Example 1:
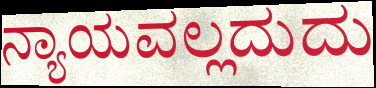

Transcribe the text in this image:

ನ್ಯಾಯವಲ್ಲದುದು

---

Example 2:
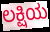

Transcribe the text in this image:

ಲಕ್ಷಿಯ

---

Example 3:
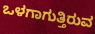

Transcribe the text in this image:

ಒಳಗಾಗುತ್ತಿರುವ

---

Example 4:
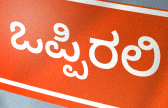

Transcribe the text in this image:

ಒಪ್ಪಿರಲಿ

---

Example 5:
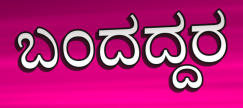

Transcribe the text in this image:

ಬಂದದ್ದರ